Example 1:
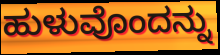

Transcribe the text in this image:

ಹುಳುವೊಂದನ್ನು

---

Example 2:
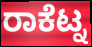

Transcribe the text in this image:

ರಾಕೆಟ್ನ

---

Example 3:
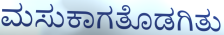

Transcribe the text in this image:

ಮಸುಕಾಗತೊಡಗಿತು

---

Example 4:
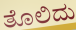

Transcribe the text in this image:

ತೊಲಿದು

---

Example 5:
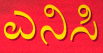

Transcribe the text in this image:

ಎನಿಸಿ